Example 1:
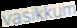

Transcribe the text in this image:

vasikkum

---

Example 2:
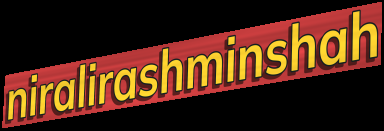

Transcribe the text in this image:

niralirashminshah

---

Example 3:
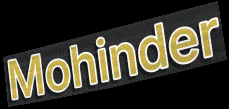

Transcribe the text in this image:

Mohinder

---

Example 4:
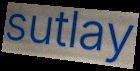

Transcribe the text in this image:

sutlay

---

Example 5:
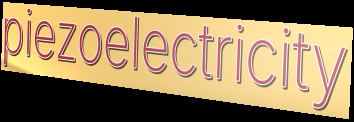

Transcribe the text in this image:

piezoelectricity